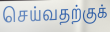
செய்வதற்குக்